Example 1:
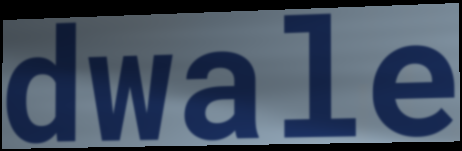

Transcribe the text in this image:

dwale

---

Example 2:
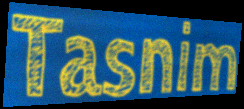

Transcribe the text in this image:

Tasnim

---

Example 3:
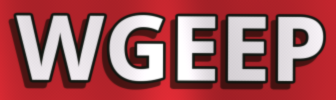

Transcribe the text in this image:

WGEEP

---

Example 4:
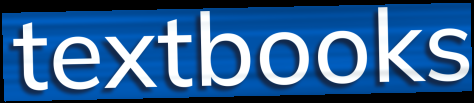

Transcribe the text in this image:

textbooks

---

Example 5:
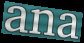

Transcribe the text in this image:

ana